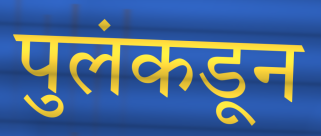
पुलंकडून